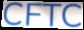
CFTC